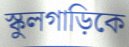
স্কুলগাড়িকে